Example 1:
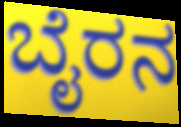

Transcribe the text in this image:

ಬೈರನ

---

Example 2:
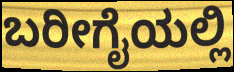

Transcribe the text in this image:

ಬರೀಗೈಯಲ್ಲಿ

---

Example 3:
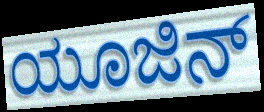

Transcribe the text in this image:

ಯೂಜಿನ್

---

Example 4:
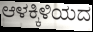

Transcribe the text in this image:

ಆಳಕ್ಕಿಳಿಯದ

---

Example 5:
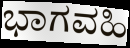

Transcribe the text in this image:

ಭಾಗವಹಿ